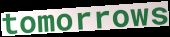
tomorrows